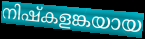
നിഷ്കളങ്കയായ